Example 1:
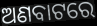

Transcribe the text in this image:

ଅଣବାଟରେ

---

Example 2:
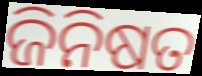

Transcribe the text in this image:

ଜିନିଷତ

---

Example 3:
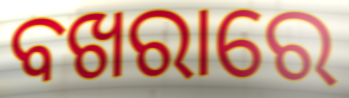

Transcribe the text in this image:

ବଖରାରେ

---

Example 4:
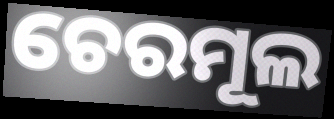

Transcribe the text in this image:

ଚେରମୂଲ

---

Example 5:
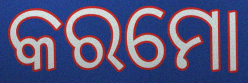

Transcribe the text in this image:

କରମୋ